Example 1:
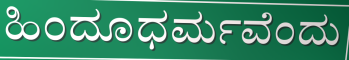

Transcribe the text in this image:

ಹಿಂದೂಧರ್ಮವೆಂದು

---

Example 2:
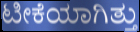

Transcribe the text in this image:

ಟೀಕೆಯಾಗಿತ್ತು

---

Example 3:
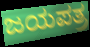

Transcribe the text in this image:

ಜಯಪತ್ರ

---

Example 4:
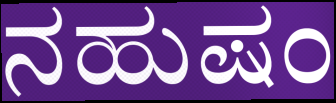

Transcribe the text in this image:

ನಹುಷಂ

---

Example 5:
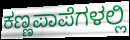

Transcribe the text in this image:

ಕಣ್ಣಪಾಪೆಗಳಲ್ಲಿ